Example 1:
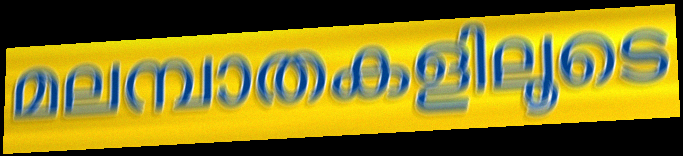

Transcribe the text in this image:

മലമ്പാതകളിലൂടെ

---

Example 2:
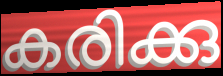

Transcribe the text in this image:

കരിക്കു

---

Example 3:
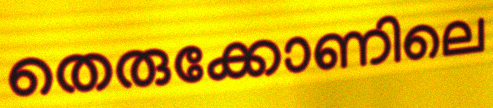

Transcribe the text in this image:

തെരുക്കോണിലെ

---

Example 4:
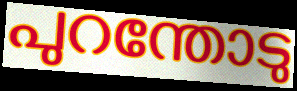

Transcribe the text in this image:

പുറന്തോടു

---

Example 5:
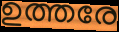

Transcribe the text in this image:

ഉത്തരേ